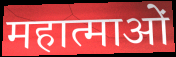
महात्माओं